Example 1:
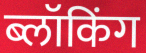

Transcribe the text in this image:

ब्लॉकिंग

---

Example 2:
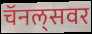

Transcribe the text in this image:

चॅनल्सवर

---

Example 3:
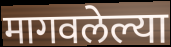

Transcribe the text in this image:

मागवलेल्या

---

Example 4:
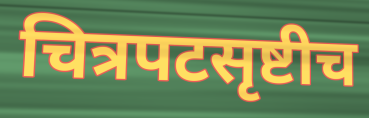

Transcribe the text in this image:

चित्रपटसृष्टीच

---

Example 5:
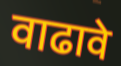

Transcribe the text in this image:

वाढावे